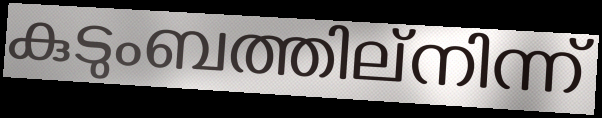
കുടുംബത്തില്നിന്ന്